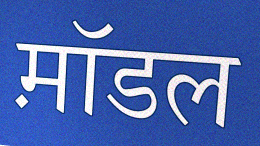
म़ॉडल